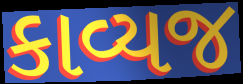
કાવ્યજ